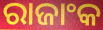
ରାଜାଂକ